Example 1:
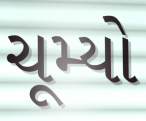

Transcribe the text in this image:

ચૂમ્યો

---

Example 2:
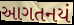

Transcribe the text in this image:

આગતનયં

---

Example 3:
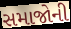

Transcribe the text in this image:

સમાજોની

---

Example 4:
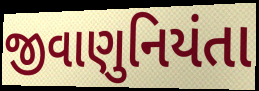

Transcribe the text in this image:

જીવાણુનિયંતા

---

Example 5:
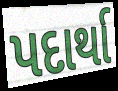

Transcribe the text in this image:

પદાર્થા